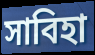
সাবিহা